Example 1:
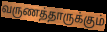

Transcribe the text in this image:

வருணத்தாருக்கும்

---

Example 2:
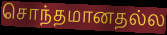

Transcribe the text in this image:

சொந்தமானதல்ல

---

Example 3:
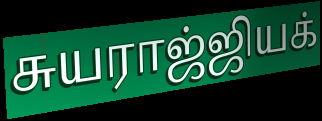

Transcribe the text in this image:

சுயராஜ்ஜியக்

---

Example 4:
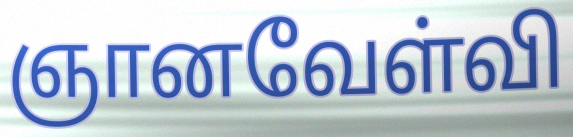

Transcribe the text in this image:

ஞானவேள்வி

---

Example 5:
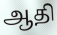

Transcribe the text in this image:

ஆதி